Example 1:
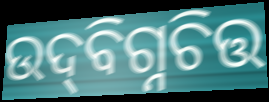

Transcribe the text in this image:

ଉଦ୍‌ବିଗ୍ନଚିତ୍ତ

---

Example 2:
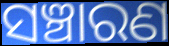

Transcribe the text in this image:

ସଞ୍ଚାରଣ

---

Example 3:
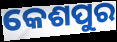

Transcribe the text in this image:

କେଶପୁର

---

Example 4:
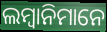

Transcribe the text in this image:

ଲମ୍ବାନିମାନେ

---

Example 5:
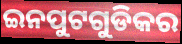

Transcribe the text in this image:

ଇନପୁଟଗୁଡିକର